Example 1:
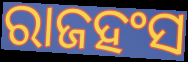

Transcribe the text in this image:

ରାଜହଂସ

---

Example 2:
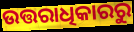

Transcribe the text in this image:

ଉତ୍ତରାଧିକାରରୁ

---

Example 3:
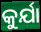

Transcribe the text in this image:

କୁର୍ଯା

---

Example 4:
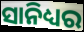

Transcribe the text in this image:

ସାନିଧ୍ୟର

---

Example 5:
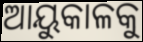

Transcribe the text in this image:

ଆୟୁକାଳକୁ